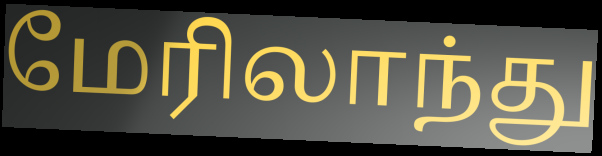
மேரிலாந்து